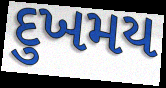
દુખમય